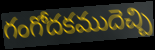
గంగోదకముదెచ్చి